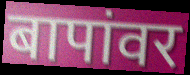
बापांवर